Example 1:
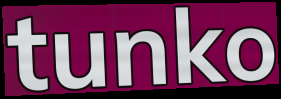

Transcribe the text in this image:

tunko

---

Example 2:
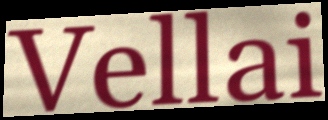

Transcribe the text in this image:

Vellai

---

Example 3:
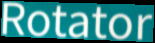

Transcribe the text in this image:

Rotator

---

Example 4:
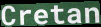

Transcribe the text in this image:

Cretan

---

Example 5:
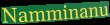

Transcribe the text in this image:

Namminanu